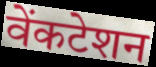
वेंकटेशन